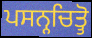
ਪਸਨ੍ਨਚਿਤ੍ਤੋ